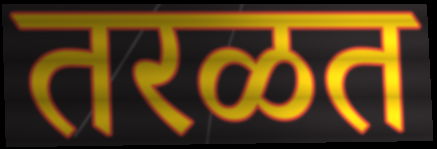
तरळत